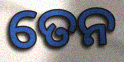
ତେନ